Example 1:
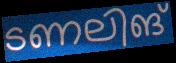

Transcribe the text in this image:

ടണലിങ്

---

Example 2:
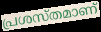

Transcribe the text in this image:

പ്രശസ്തമാണ്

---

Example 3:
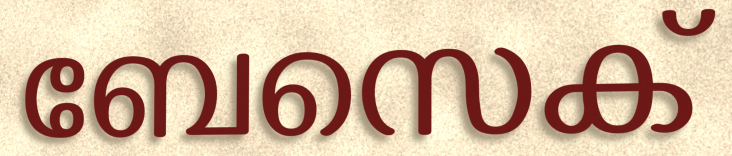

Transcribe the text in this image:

ബേസെക്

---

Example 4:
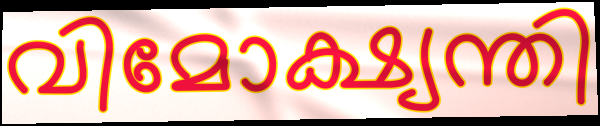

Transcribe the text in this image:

വിമോക്ഷ്യന്തി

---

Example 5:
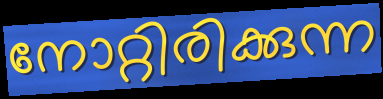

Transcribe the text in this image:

നോറ്റിരിക്കുന്ന